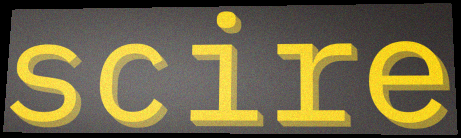
scire